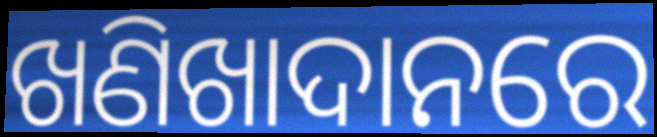
ଖଣିଖାଦାନରେ